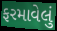
ફરમાવેલું